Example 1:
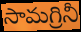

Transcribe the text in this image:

సామగ్రినీ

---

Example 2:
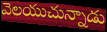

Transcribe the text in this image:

వెలయుచున్నాడు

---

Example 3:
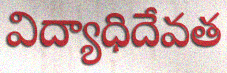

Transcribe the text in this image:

విద్యాధిదేవత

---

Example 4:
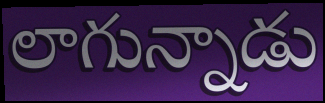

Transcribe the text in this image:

లాగున్నాడు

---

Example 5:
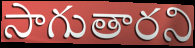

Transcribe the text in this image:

సాగుతారని